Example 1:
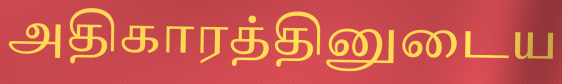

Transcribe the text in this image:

அதிகாரத்தினுடைய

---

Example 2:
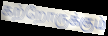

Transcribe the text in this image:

கற்றோருக்கும்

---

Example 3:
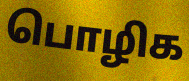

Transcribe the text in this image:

பொழிக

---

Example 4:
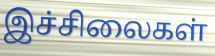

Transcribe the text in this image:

இச்சிலைகள்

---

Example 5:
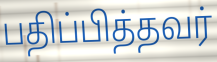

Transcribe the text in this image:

பதிப்பித்தவர்